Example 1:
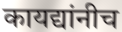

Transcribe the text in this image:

कायद्यांनीच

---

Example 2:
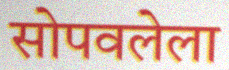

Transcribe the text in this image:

सोपवलेला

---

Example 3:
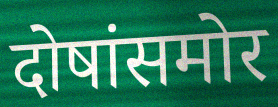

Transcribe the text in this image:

दोषांसमोर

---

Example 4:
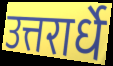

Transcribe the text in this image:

उत्तरार्धे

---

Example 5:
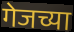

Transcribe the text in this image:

गेजच्या